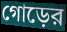
গোড়ের